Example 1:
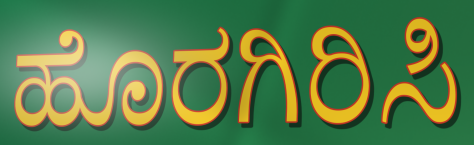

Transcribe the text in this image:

ಹೊರಗಿರಿಸಿ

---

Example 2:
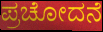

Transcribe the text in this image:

ಪ್ರಚೋದನೆ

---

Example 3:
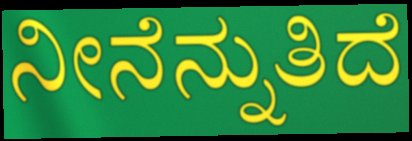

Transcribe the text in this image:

ನೀನೆನ್ನುತಿದೆ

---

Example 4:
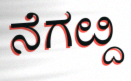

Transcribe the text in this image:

ನೆಗೞ್ದ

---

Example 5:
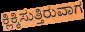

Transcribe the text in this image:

ಕ್ಲಿಕ್ಕಿಸುತ್ತಿರುವಾಗ